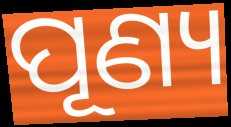
ପୂଣ୍ୟ